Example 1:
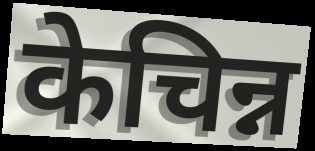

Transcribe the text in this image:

केचिन्न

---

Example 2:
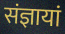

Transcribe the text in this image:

संज्ञायां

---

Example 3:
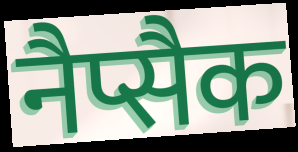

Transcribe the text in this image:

नैप्सैक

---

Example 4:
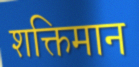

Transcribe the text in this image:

शक्तिमान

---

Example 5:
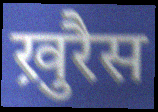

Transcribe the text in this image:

ख़ुरैस